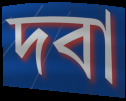
দবা